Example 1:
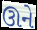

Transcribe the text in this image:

ઊને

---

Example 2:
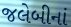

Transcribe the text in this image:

જલેબીનાં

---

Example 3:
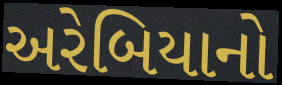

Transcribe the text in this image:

અરેબિયાનો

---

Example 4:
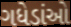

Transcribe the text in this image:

ગધેડાંઓ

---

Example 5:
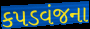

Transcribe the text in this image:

કપડવંજના